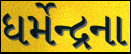
ધર્મેન્દ્રના